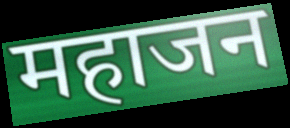
महाजन